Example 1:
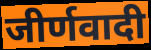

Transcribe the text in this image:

जीर्णवादी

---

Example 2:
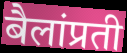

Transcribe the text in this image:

बैलांप्रती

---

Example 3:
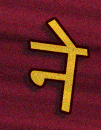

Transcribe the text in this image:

ने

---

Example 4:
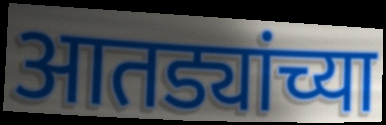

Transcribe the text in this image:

आतड्यांच्या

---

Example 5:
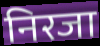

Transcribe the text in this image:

निरजा